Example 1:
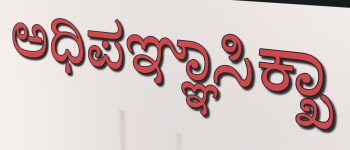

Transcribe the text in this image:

ಅಧಿಪಞ್ಞಾಸಿಕ್ಖಾ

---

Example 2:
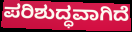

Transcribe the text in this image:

ಪರಿಶುದ್ಧವಾಗಿದೆ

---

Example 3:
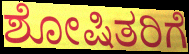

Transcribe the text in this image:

ಶೋಷಿತರಿಗೆ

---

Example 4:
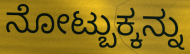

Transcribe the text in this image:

ನೋಟ್ಬುಕ್ಕನ್ನು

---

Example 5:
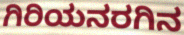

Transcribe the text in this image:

ಗಿರಿಯನರಗಿನ